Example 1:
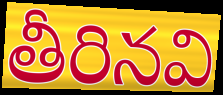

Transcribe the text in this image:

తీరినవి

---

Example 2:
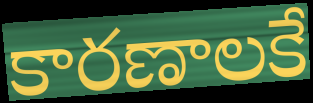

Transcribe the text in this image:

కారణాలకే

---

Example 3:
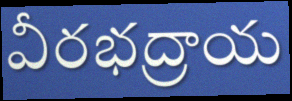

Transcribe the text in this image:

వీరభద్రాయ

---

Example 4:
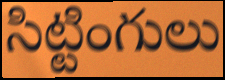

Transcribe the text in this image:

సిట్టింగులు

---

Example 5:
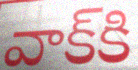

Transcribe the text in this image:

వాక్‌కి